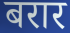
बरार